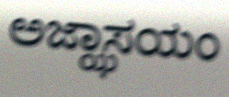
ಅಜ್ಝಾಸಯಂ